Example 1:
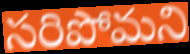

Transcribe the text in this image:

సరిపోమని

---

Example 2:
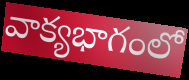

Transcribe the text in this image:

వాక్యభాగంలో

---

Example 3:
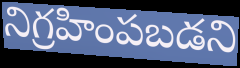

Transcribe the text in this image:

నిగ్రహింపబడని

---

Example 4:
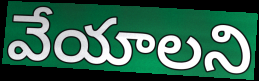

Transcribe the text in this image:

వేయాలని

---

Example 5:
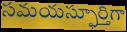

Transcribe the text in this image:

సమయస్ఫూర్తిగా